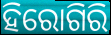
ହିରୋଗିରି